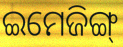
ଇମେଜିଙ୍ଗ୍